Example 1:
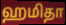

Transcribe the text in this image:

ஹமிதா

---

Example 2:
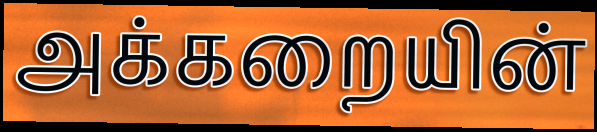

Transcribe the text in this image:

அக்கறையின்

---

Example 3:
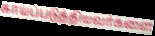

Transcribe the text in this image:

காயப்படுத்தியவர்களை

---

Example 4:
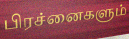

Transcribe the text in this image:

பிரச்னைகளும்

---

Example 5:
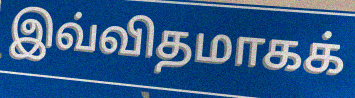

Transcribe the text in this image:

இவ்விதமாகக்